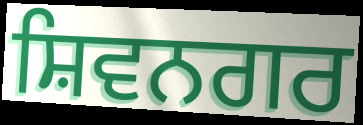
ਸ਼ਿਵਨਗਰ